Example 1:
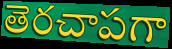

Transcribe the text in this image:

తెరచాపగా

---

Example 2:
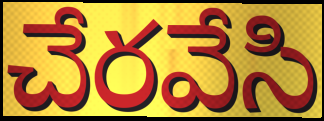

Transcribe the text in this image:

చేరవేసి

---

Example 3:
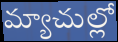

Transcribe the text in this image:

మ్యాచుల్లో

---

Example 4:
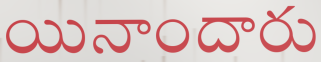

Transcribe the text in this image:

యినాందారు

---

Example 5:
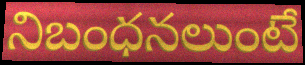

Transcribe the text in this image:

నిబంధనలుంటే